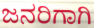
ಜನರಿಗಾಗಿ